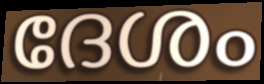
ദേശം